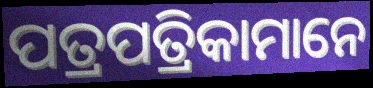
ପତ୍ରପତ୍ରିକାମାନେ